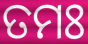
ତମଃ